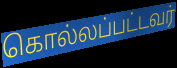
கொல்லப்பட்டவர்